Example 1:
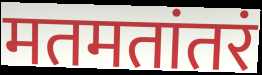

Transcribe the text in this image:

मतमतांतरं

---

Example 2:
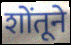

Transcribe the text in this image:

शोंतूने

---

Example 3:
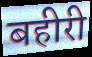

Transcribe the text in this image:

बहीरी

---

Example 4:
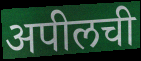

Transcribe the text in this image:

अपीलची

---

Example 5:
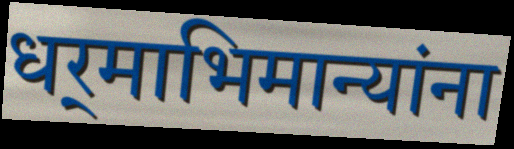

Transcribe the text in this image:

धर्माभिमान्यांना